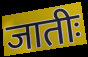
जातीः